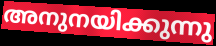
അനുനയിക്കുന്നു